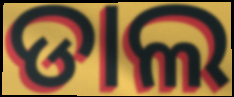
ଡାଲ